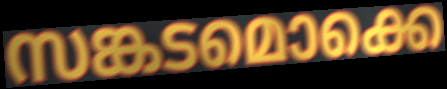
സങ്കടമൊക്കെ